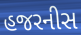
હજરનીસ